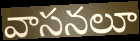
వాసనలూ